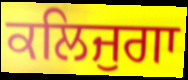
ਕਲਿਜੁਗਾ